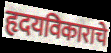
हृदयविकाराचे